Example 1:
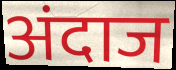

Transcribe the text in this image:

अंदाज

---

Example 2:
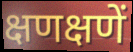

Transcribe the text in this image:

क्षणक्षणें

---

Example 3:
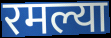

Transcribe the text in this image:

रमल्या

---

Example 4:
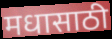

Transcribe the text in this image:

मधासाठी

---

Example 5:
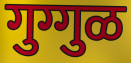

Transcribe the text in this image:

गुग्गुळ